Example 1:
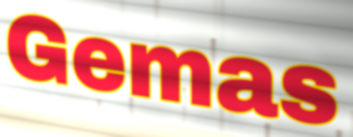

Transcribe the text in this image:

Gemas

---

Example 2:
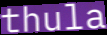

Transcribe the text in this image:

thula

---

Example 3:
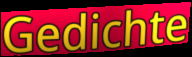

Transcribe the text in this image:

Gedichte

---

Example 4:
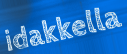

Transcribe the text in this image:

idakkella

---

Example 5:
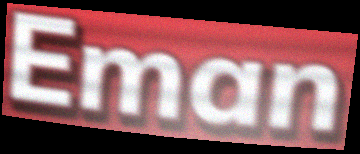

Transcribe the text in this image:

Eman